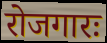
रोजगारः